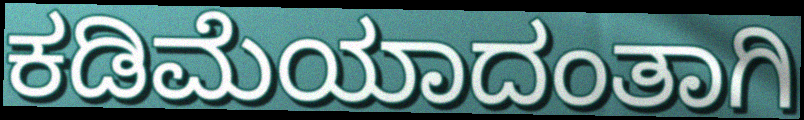
ಕಡಿಮೆಯಾದಂತಾಗಿ